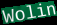
Wolin